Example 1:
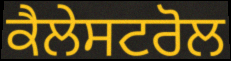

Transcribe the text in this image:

ਕੈਲੇਸਟਰੋਲ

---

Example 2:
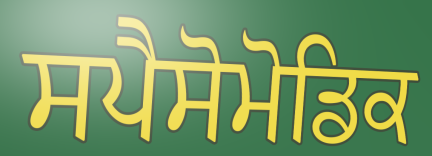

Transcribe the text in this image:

ਸਪੈਸੋਮੋਡਿਕ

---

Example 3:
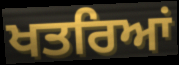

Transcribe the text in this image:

ਖਤਰਿਆਂ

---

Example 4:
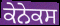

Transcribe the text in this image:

ਕੇਨੇਕਸ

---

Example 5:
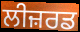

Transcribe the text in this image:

ਲੀਜ਼ਰਡ